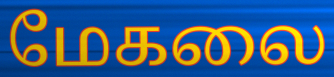
மேகலை